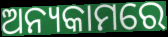
ଅନ୍ୟକାମରେ